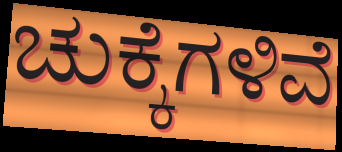
ಚುಕ್ಕೆಗಳಿವೆ